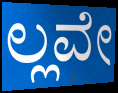
ಲ್ಲವೇ